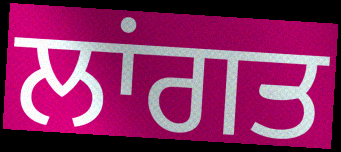
ਲਾਂਗਤ